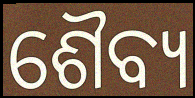
ଶୈବ୍ୟ